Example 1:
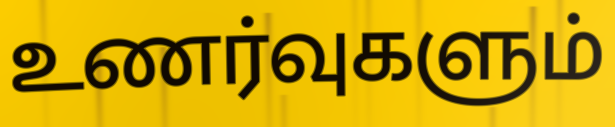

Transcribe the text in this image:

உணர்வுகளும்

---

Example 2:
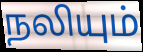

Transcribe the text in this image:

நலியும்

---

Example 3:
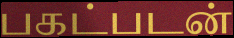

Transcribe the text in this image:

பகட்படன்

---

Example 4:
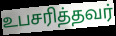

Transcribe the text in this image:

உபசரித்தவர்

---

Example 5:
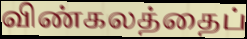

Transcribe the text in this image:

விண்கலத்தைப்